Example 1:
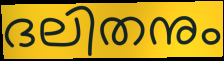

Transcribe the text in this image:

ദലിതനും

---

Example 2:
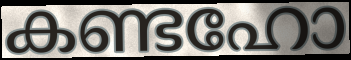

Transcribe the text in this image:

കണ്ടഹോ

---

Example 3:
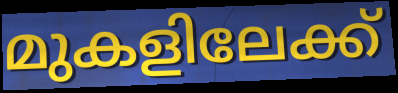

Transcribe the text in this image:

മുകളിലേക്ക്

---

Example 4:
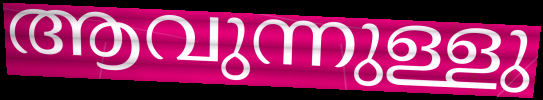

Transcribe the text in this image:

ആവുന്നുള്ളു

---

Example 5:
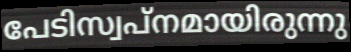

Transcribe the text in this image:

പേടിസ്വപ്നമായിരുന്നു